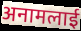
अनामलाई